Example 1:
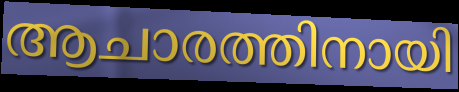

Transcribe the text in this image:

ആചാരത്തിനായി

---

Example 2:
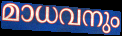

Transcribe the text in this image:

മാധവനും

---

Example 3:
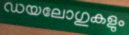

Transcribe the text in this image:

ഡയലോഗുകളും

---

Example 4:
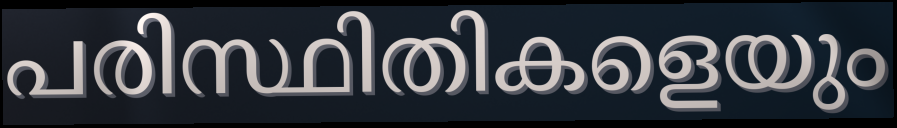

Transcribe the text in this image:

പരിസ്ഥിതികളെയും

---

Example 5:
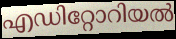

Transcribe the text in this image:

എഡിറ്റോറിയൽ